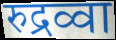
रुद्रव्वा